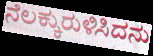
ನೆಲಕ್ಕುರುಳಿಸಿದನು